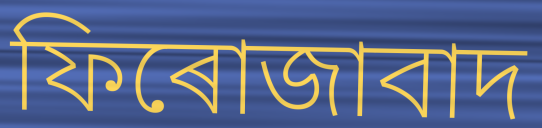
ফিৰোজাবাদ